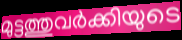
മുട്ടത്തുവർക്കിയുടെ